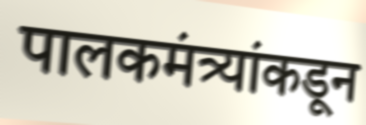
पालकमंत्र्यांकडून